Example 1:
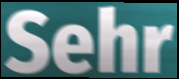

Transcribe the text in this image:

Sehr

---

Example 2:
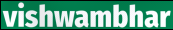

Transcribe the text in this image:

vishwambhar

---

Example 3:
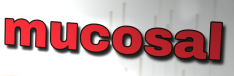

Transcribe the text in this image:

mucosal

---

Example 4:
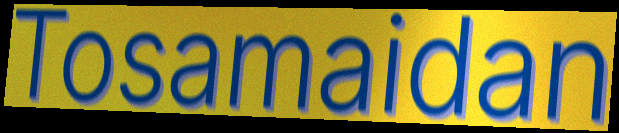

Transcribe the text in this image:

Tosamaidan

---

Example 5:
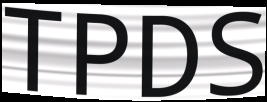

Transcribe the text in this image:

TPDS